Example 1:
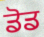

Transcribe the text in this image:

ਡੋਡ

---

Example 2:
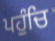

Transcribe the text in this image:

ਪਹੁੰਚਿ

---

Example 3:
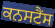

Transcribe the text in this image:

ਕਨਸਟੈਂਸ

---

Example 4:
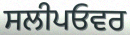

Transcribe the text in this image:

ਸਲੀਪਓਵਰ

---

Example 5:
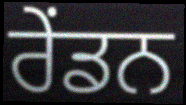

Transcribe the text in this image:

ਰੇਂਡਨ